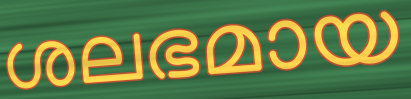
ശലഭമായ